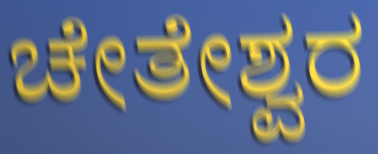
ಚೇತೇಶ್ವರ